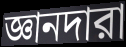
জ্ঞানদারা